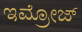
ಇಮ್ರೋಜ್